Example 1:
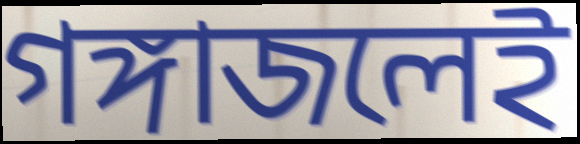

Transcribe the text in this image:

গঙ্গাজলেই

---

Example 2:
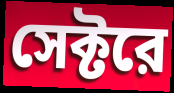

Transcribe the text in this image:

সেক্টরে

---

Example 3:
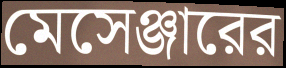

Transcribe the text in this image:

মেসেঞ্জারের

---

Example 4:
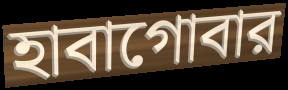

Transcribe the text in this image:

হাবাগোবার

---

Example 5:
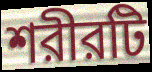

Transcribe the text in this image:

শরীরটি